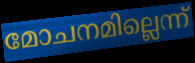
മോചനമില്ലെന്ന്